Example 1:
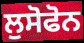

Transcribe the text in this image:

ਲੁਸੋਫੋਨ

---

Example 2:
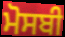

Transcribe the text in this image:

ਮੋਸਬੀ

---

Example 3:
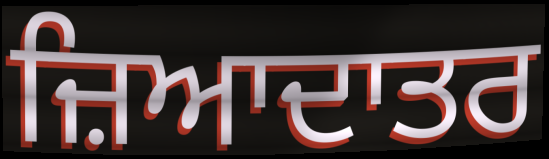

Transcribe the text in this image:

ਜ਼ਿਆਦਾਤਰ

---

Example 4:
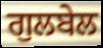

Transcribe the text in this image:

ਗੁਲਬੇਲ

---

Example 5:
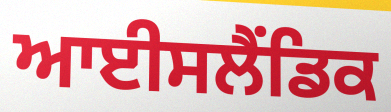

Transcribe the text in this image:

ਆਈਸਲੈਂਡਿਕ